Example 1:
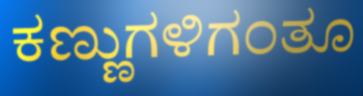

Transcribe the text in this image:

ಕಣ್ಣುಗಳಿಗಂತೂ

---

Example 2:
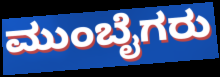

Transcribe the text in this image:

ಮುಂಬೈಗರು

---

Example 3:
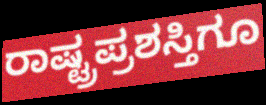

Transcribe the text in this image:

ರಾಷ್ಟ್ರಪ್ರಶಸ್ತಿಗೂ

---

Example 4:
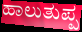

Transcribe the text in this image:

ಹಾಲುತುಪ್ಪ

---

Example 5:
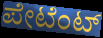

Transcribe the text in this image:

ಪೇಟೆಂಟ್